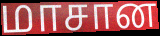
மாசான